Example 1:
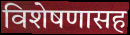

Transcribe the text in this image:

विशेषणासह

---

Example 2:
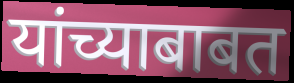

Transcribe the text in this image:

यांच्याबाबत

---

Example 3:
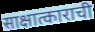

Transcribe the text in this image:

साक्षात्काराची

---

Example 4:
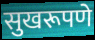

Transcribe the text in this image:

सुखरूपणे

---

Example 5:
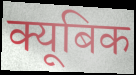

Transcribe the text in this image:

क्यूबिक